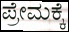
ಪ್ರೇಮಕ್ಕೆ